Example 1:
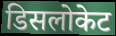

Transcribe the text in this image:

डिसलोकेट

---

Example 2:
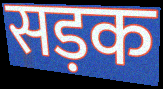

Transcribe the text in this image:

सड़क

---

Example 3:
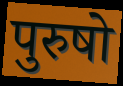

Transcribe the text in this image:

पुरुषो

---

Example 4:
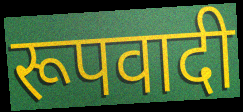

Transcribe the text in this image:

रूपवादी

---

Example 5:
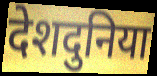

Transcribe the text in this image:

देशदुनिया